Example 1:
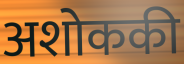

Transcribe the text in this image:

अशोककी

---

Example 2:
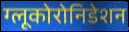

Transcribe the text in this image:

ग्लूकोरोनिडेशन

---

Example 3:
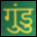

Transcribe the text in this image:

गुंडु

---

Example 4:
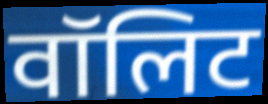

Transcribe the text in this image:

वॉलिट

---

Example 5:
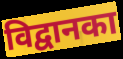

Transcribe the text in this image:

विद्वानका